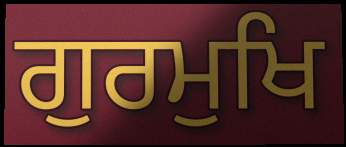
ਗੁਰਮੁਖਿ